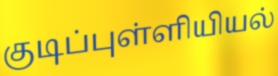
குடிப்புள்ளியியல்